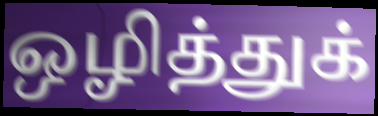
ஒழித்துக்